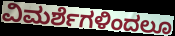
ವಿಮರ್ಶೆಗಳಿಂದಲೂ